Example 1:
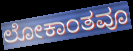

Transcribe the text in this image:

ಲೋಕಾಂತವೂ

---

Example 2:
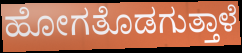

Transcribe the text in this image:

ಹೋಗತೊಡಗುತ್ತಾಳೆ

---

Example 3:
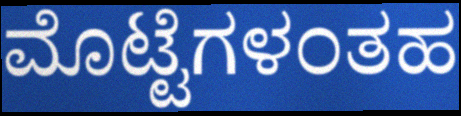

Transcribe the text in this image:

ಮೊಟ್ಟೆಗಳಂತಹ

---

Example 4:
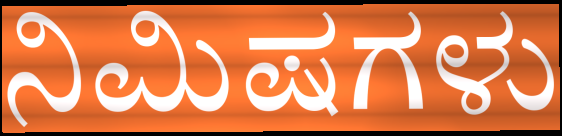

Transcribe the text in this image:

ನಿಮಿಷಗಳು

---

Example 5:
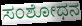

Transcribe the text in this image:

ಸಂಶೋಧನ